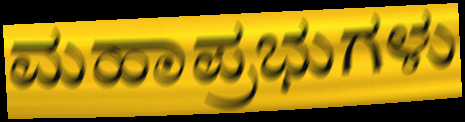
ಮಹಾಪ್ರಭುಗಳು